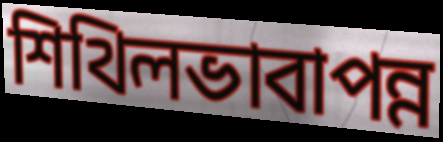
শিথিলভাবাপন্ন